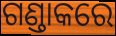
ଗଣ୍ଡାକରେ